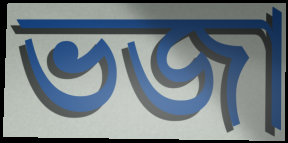
ভজা